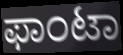
ಫಾಂಟಾ